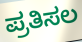
ಪ್ರತಿಸಲ